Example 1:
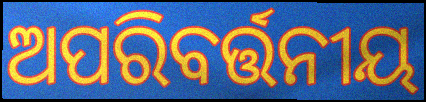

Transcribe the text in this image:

ଅପରିବର୍ତ୍ତନୀୟ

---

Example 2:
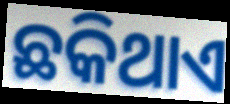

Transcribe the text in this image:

ଛକିଥାଏ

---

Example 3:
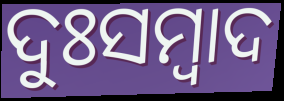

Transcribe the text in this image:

ଦୁଃସମ୍ବାଦ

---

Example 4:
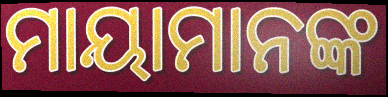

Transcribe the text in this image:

ମାୟାମାନଙ୍କ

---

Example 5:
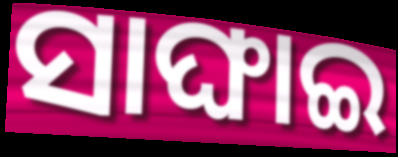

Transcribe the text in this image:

ସାଙ୍ଘାଇ